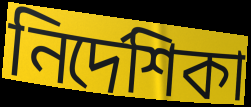
নিৰ্দেশিকা